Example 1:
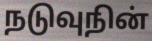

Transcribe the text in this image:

நடுவுநின்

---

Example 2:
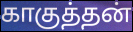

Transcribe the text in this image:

காகுத்தன்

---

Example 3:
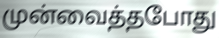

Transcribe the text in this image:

முன்வைத்தபோது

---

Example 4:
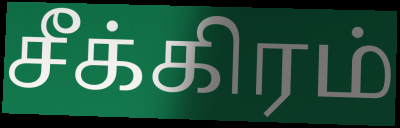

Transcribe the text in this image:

சீக்கிரம்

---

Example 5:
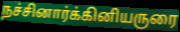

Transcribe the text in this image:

நச்சினார்க்கினியருரை